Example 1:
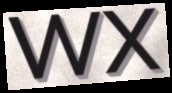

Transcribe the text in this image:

WX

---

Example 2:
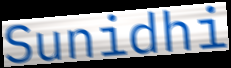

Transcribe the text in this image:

Sunidhi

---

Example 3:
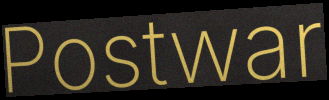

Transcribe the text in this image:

Postwar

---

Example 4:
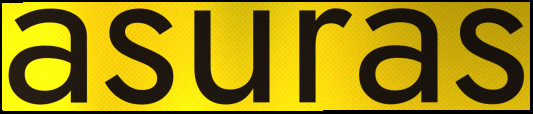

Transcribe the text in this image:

asuras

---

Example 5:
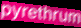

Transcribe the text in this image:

pyrethrum